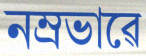
নম্ৰভাৱে